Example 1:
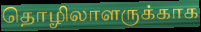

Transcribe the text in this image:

தொழிலாளருக்காக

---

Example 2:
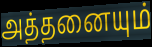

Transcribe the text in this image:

அத்தனையும்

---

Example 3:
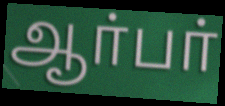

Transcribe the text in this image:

ஆர்பர்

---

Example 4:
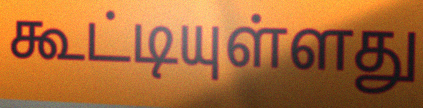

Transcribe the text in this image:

கூட்டியுள்ளது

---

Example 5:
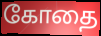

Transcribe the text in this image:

கோதை